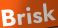
Brisk